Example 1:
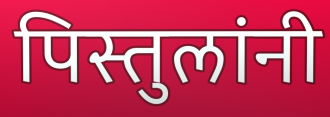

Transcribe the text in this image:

पिस्तुलांनी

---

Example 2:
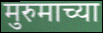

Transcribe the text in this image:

मुरुमाच्या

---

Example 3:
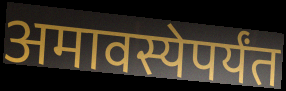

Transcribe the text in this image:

अमावस्येपर्यंत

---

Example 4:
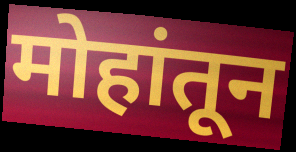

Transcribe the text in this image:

मोहांतून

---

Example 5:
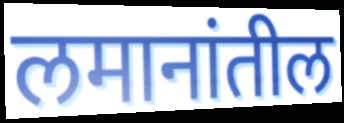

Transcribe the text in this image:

लमानांतील